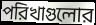
পরিখাগুলোর